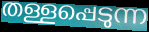
തള്ളപ്പെടുന്ന